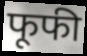
फूफी